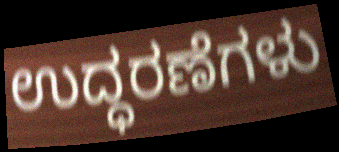
ಉದ್ಧರಣೆಗಳು